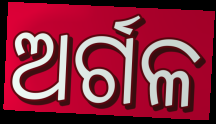
ଅର୍ଗଳ